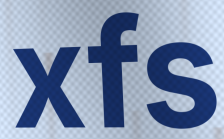
xfs